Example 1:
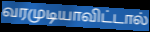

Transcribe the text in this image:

வரமுடியாவிட்டால்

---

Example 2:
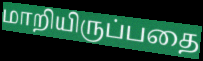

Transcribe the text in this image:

மாறியிருப்பதை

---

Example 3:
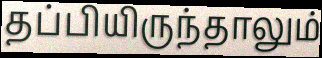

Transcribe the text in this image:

தப்பியிருந்தாலும்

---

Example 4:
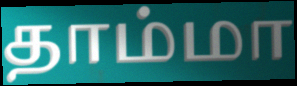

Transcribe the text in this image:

தாம்மா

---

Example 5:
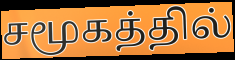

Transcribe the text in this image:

சமூகத்தில்